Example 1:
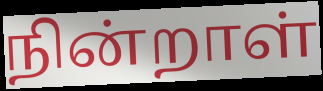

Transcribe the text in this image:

நின்றாள்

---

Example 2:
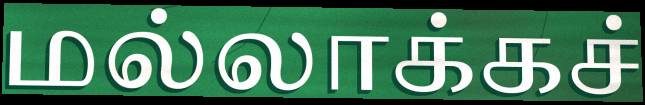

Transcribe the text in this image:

மல்லாக்கச்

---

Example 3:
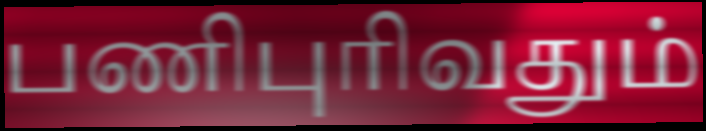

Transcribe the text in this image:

பணிபுரிவதும்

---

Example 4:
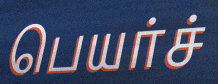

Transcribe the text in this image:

பெயர்ச்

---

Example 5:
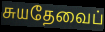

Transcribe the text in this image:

சுயதேவைப்